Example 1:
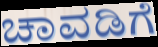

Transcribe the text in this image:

ಚಾವಡಿಗೆ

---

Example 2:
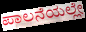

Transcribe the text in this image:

ಪಾಲನೆಯಲ್ಲೇ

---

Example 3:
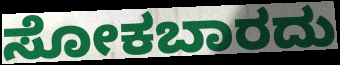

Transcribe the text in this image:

ಸೋಕಬಾರದು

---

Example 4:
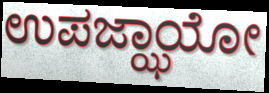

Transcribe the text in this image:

ಉಪಜ್ಝಾಯೋ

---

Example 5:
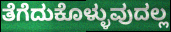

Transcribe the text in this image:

ತೆಗೆದುಕೊಳ್ಳುವುದಲ್ಲ